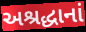
અશ્રદ્ધાનાં